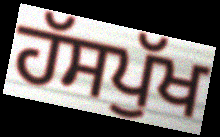
ਹੱਸਪੁੱਖ